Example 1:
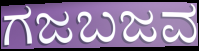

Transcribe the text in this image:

ಗಜಬಜವ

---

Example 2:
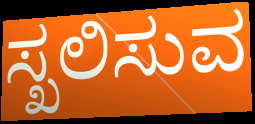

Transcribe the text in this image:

ಸ್ಖಲಿಸುವ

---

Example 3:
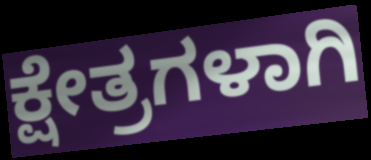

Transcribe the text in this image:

ಕ್ಷೇತ್ರಗಳಾಗಿ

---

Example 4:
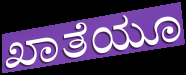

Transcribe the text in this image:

ಖಾತೆಯೂ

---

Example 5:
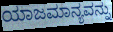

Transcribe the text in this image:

ಯಾಜಮಾನ್ಯವನ್ನು